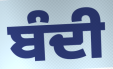
ਬੰਦੀ